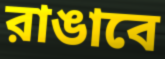
রাঙাবে